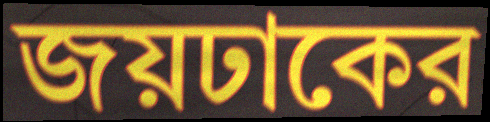
জয়ঢাকের